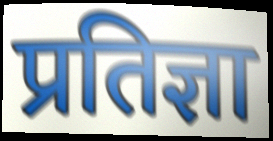
प्रतिज्ञा